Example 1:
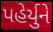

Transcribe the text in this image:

પહેર્યુને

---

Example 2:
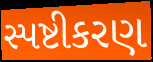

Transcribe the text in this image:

સ્પષ્ટીકરણ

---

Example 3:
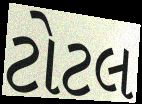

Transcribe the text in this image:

ટોટલ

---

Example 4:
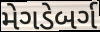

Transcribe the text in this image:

મેગડેબર્ગ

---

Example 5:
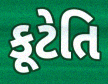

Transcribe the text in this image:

કૂટેતિ